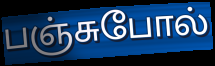
பஞ்சுபோல்